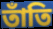
তাঁতি